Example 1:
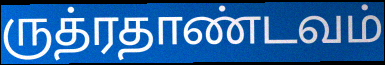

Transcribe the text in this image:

ருத்ரதாண்டவம்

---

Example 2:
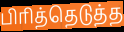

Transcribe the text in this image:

பிரித்தெடுத்த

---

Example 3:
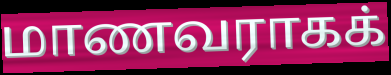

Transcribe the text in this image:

மாணவராகக்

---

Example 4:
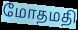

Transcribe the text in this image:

மோதமதி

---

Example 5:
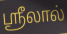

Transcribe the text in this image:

ஸ்ரீலால்